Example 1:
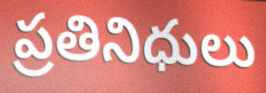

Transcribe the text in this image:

ప్రతినిధులు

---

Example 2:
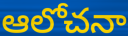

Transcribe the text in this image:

ఆలోచనా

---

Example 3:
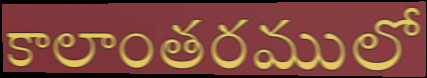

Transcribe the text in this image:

కాలాంతరములో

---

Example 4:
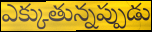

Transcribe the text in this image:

ఎక్కుతున్నప్పుడు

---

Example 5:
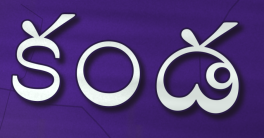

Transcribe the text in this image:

కండ